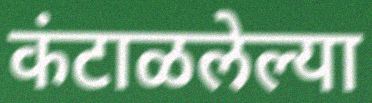
कंटाळलेल्या